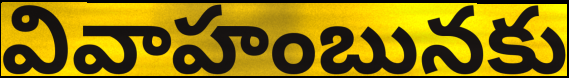
వివాహంబునకు